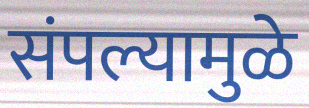
संपल्यामुळे